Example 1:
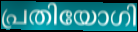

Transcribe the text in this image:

പ്രതിയോഗി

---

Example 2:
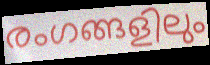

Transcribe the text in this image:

രംഗങ്ങളിലും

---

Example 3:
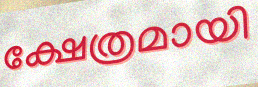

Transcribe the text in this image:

ക്ഷേത്രമായി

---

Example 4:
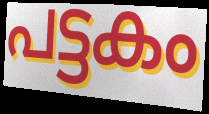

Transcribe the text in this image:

പട്ടകം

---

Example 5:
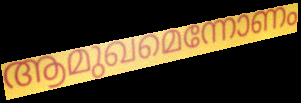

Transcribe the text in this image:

ആമുഖമെന്നോണം